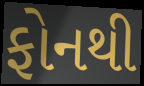
ફોનથી